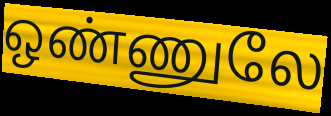
ஒண்ணுலே